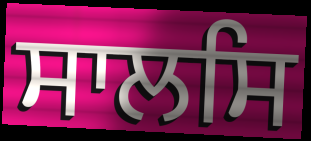
ਸਾਲਸਿ